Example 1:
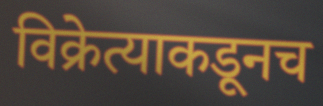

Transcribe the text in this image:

विक्रेत्याकडूनच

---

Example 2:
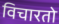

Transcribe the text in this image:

विचारतो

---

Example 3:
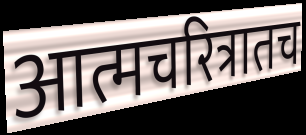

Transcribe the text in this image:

आत्मचरित्रातच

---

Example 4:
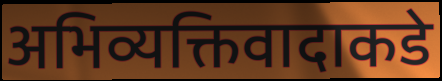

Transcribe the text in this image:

अभिव्यक्तिवादाकडे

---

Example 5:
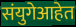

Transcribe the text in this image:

संयुगेआहेत